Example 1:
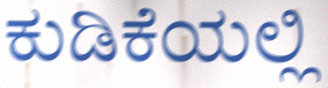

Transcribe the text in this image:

ಕುಡಿಕೆಯಲ್ಲಿ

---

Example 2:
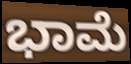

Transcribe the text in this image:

ಭಾಮೆ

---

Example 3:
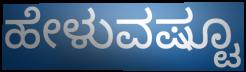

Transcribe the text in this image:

ಹೇಳುವಷ್ಟೂ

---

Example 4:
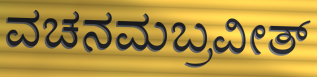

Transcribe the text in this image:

ವಚನಮಬ್ರವೀತ್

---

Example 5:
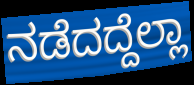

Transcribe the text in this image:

ನಡೆದದ್ದೆಲ್ಲಾ